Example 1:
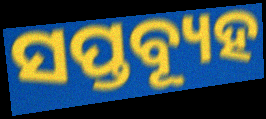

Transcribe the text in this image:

ସପ୍ତବ୍ୟୂହ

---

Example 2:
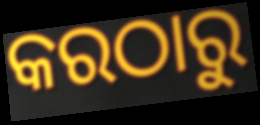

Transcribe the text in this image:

କରଠାରୁ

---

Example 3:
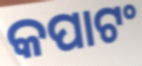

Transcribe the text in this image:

କପାଟଂ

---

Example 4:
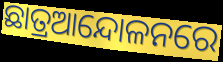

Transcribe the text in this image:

ଛାତ୍ରଆନ୍ଦୋଳନରେ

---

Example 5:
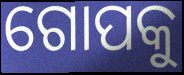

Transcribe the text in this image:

ଗୋପକୁ